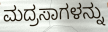
ಮದ್ರಸಾಗಳನ್ನು